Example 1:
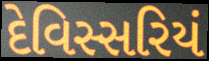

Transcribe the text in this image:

દેવિસ્સરિયં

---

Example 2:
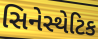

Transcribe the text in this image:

સિનેસ્થેટિક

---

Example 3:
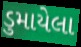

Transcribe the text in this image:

ડુમાયેલા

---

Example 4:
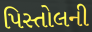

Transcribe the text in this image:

પિસ્તોલની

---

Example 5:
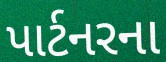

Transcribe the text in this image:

પાર્ટનરના